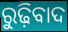
ରୁଢ଼ିବାଦ